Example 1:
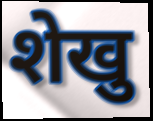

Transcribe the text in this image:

शेखु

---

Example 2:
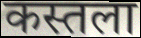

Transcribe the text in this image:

कस्तला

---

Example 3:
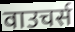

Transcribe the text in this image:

वाउचर्स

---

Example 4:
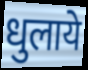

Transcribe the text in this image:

धुलाये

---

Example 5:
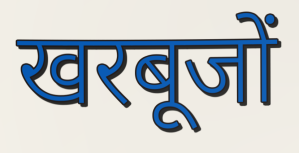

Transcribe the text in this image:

खरबूजों